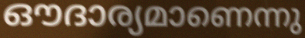
ഔദാര്യമാണെന്നു